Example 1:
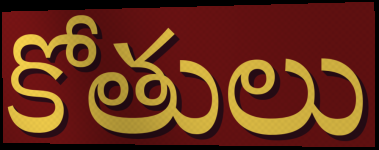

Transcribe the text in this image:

కోతులు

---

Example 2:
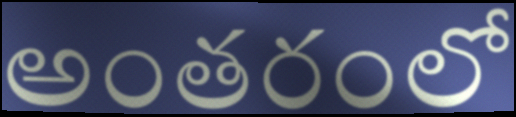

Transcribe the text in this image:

అంతరంలో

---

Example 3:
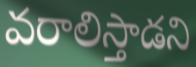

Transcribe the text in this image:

వరాలిస్తాడని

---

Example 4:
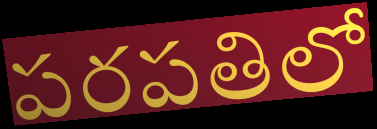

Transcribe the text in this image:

పరపతిలో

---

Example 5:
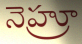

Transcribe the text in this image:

నెహ్రూ